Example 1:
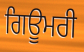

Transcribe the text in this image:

ਗਿਊਮਰੀ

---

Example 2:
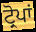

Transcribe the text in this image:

ਟ੍ਰੋਪਾਂ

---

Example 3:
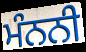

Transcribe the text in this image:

ਮੰਨਨੀ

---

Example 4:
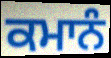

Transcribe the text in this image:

ਕਮਾਨੰ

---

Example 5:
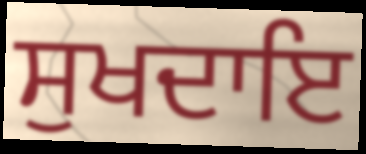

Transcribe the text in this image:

ਸੁਖਦਾਇ